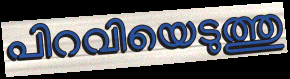
പിറവിയെടുത്തു